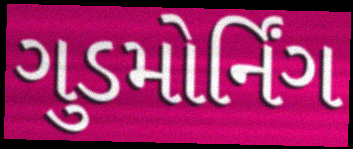
ગુડમોર્નિંગ